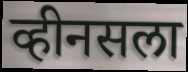
व्हीनसला